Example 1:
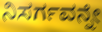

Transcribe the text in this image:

ನಿಸರ್ಗವನ್ನೇ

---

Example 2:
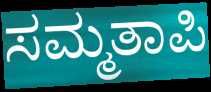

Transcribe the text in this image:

ಸಮ್ಮತಾಪಿ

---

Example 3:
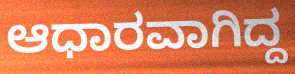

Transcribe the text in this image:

ಆಧಾರವಾಗಿದ್ದ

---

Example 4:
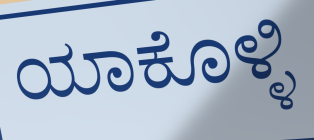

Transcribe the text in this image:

ಯಾಕೊಳ್ಳಿ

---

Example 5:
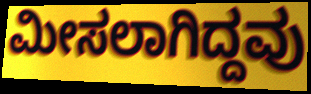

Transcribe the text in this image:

ಮೀಸಲಾಗಿದ್ದವು